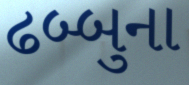
ઢબ્બુના